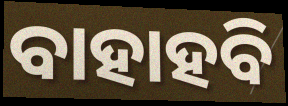
ବାହାହବି